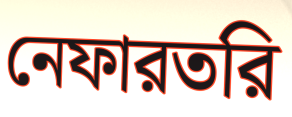
নেফারতরি